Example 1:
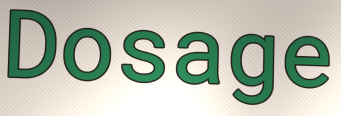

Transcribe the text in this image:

Dosage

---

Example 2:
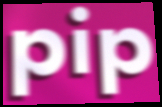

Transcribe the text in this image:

pip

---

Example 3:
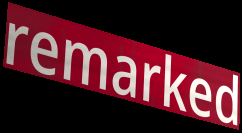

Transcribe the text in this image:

remarked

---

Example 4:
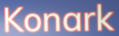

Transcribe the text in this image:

Konark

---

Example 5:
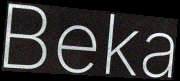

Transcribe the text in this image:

Beka